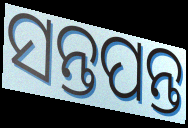
ସନ୍ତପନ୍ତ